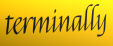
terminally